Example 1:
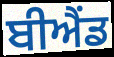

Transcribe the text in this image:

ਬੀਐਂਡ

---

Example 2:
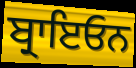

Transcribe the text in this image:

ਬ੍ਰਾਇਓਨ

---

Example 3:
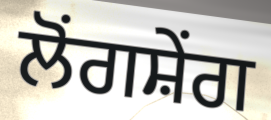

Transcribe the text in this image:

ਲੋਂਗਸ਼ੇਂਗ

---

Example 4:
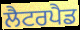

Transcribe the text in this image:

ਲੈਟਰਪੈਡ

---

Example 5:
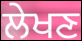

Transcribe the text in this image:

ਲੇਖਣ